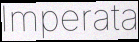
Imperata